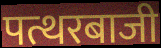
पत्थरबाजी